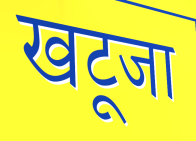
खटूजा